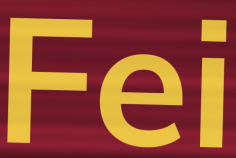
Fei